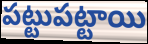
పట్టుపట్టాయి